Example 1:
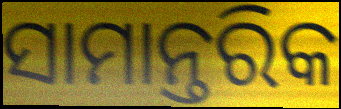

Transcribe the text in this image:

ସାମାନ୍ତରିକ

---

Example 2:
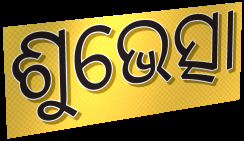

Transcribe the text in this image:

ଶୁଭେତ୍ସା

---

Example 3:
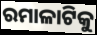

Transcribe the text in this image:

ରମାଳାଟିକୁ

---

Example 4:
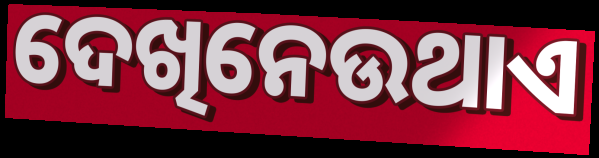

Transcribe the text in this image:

ଦେଖିନେଉଥାଏ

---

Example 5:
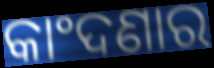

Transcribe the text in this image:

କାଂଦଣାର